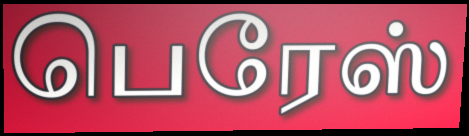
பெரேஸ்